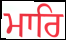
ਮਾਰਿ